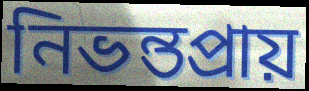
নিভন্তপ্রায়